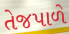
તેજપાળે